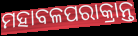
ମହାବଳପରାକ୍ରାନ୍ତ